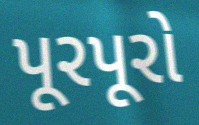
પૂરપૂરો